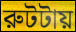
রুটটায়